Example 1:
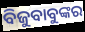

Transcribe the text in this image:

ବିଜୁବାବୁଙ୍କର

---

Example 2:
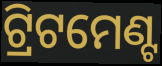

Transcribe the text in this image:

ଟ୍ରିଟମେଣ୍ଟ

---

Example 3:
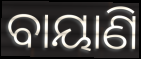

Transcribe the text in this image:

ବାୟାଣି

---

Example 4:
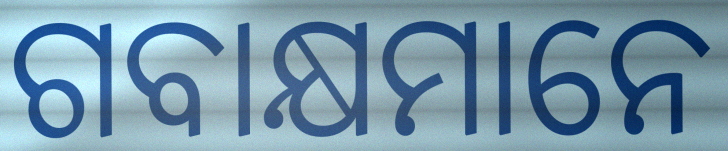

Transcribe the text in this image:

ଗବାକ୍ଷମାନେ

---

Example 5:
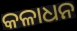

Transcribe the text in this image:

କଳାଧନ